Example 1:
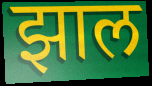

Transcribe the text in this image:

झाल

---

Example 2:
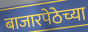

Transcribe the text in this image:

बाजारपेठेच्या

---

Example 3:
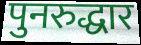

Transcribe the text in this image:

पुनरुद्धार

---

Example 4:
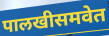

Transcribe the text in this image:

पालखीसमवेत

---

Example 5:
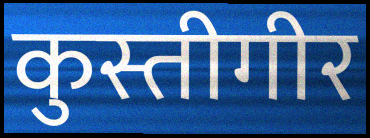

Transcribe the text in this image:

कुस्तीगीर